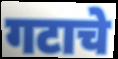
गटाचे